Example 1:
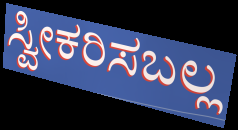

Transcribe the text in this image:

ಸ್ವೀಕರಿಸಬಲ್ಲ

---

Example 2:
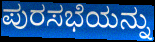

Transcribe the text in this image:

ಪುರಸಭೆಯನ್ನು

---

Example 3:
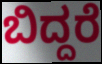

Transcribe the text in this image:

ಬಿದ್ದರೆ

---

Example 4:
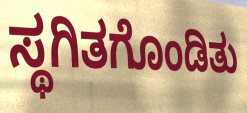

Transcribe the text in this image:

ಸ್ಥಗಿತಗೊಂಡಿತು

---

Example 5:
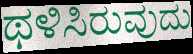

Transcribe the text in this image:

ಥಳಿಸಿರುವುದು